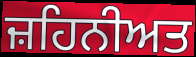
ਜ਼ਹਿਨੀਅਤ